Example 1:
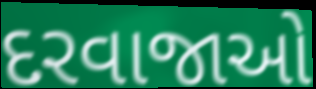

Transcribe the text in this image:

દરવાજાઓ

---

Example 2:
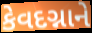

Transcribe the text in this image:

કેવદગ્નાને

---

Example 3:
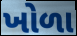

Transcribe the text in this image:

ખોળા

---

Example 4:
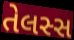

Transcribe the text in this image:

તેલસ્સ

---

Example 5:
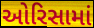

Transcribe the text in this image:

ઓરિસામાં